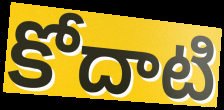
కోదాటి